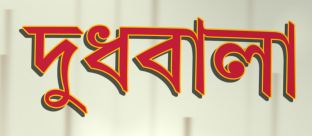
দুধবালা